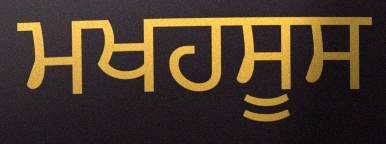
ਮਖਹਸੂਸ